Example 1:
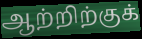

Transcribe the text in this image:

ஆற்றிற்குக்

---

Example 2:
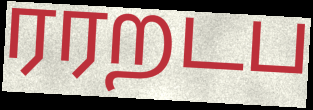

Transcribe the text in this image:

ரரறடப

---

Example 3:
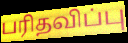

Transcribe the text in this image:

பரிதவிப்பு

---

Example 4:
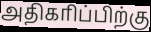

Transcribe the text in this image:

அதிகரிப்பிற்கு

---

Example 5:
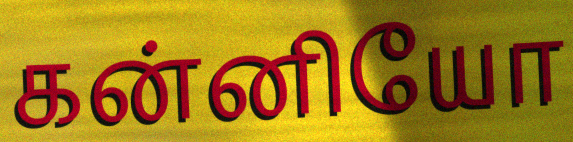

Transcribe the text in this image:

கன்னியோ